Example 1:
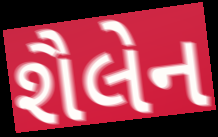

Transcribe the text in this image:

શૈલેન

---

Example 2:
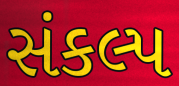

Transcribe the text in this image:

સંકલ્પ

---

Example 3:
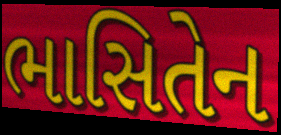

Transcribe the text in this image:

ભાસિતેન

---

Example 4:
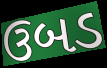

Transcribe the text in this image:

ઉબડ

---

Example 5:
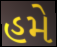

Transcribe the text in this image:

હમે